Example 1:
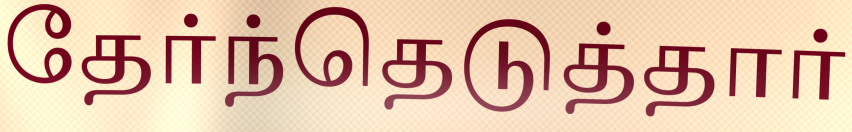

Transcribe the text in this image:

தேர்ந்தெடுத்தார்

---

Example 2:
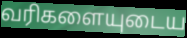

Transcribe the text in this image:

வரிகளையுடைய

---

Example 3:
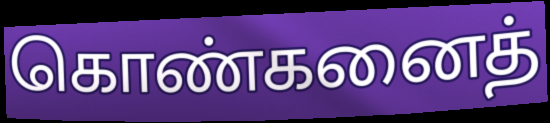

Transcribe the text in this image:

கொண்கனைத்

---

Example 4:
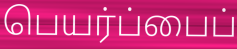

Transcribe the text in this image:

பெயர்ப்பைப்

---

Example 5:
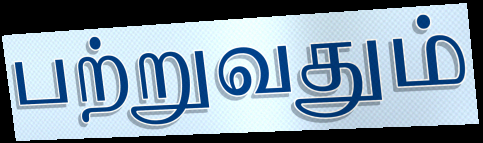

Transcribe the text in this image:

பற்றுவதும்